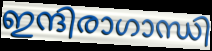
ഇന്ദിരാഗാന്ധി